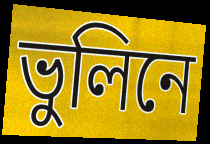
ভুলিনে